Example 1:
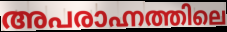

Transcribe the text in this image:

അപരാഹ്നത്തിലെ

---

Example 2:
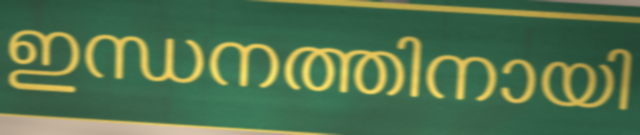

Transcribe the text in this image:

ഇന്ധനത്തിനായി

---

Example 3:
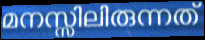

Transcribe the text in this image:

മനസ്സിലിരുന്നത്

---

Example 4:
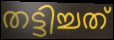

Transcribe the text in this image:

തട്ടിച്ചത്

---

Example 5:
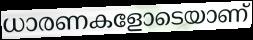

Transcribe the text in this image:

ധാരണകളോടെയാണ്